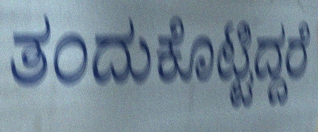
ತಂದುಕೊಟ್ಟಿದ್ದರೆ